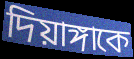
দিয়াঙ্গাকে